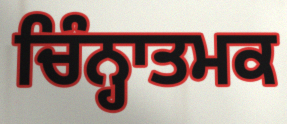
ਚਿੰਨ੍ਹਾਤਮਕ